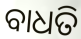
ବାଧତି